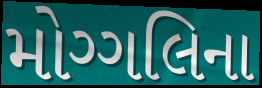
મોગ્ગલિના